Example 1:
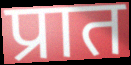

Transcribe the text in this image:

प्रात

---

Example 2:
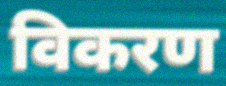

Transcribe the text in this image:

विकरण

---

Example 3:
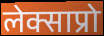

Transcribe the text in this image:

लेक्साप्रो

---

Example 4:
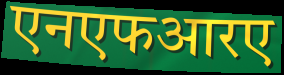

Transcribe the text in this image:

एनएफआरए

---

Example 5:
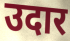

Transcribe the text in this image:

उदार